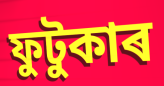
ফুটুকাৰ